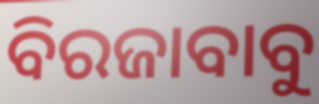
ବିରଜାବାବୁ